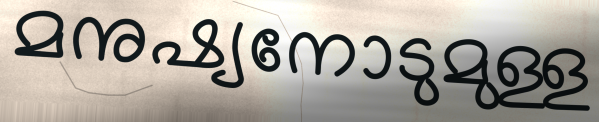
മനുഷ്യനോടുമുള്ള